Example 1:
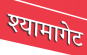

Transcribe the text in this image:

श्यामागेट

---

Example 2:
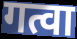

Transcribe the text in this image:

गत्वा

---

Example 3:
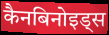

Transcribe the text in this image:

कैनबिनोइड्स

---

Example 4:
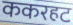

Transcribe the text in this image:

ककरहट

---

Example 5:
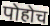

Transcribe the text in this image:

पोहोच